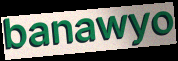
banawyo